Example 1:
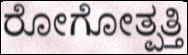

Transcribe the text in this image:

ರೋಗೋತ್ಪತ್ತಿ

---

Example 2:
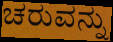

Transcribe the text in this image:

ಚರುವನ್ನು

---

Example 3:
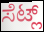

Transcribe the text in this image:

ಸೆಟ್ಲ್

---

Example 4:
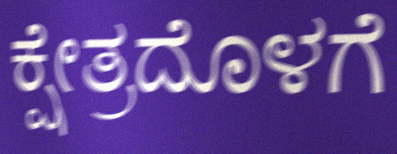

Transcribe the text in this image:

ಕ್ಷೇತ್ರದೊಳಗೆ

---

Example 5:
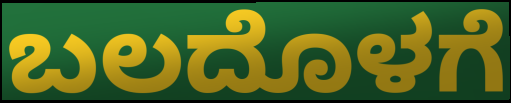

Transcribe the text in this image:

ಬಲದೊಳಗೆ